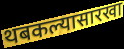
थबकल्यासारखा